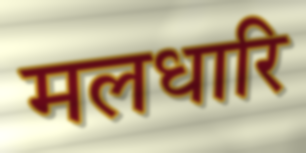
मलधारि